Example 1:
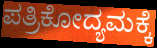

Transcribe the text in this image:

ಪತ್ರಿಕೋದ್ಯಮಕ್ಕೆ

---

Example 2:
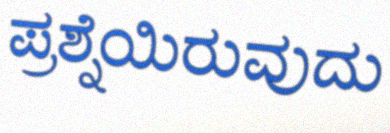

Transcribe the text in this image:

ಪ್ರಶ್ನೆಯಿರುವುದು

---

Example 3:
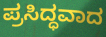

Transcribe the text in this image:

ಪ್ರಸಿದ್ಧವಾದ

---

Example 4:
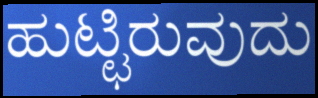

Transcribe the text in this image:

ಹುಟ್ಟಿರುವುದು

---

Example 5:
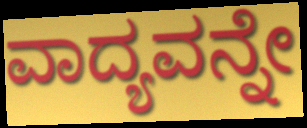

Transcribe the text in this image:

ವಾದ್ಯವನ್ನೇ